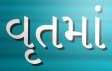
વૃતમાં